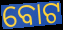
ବୋଟ